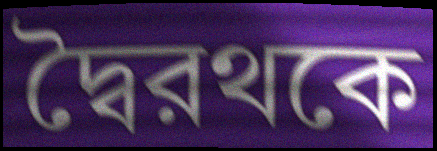
দ্বৈরথকে